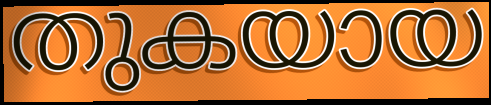
തുകയായ